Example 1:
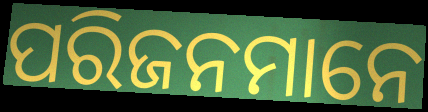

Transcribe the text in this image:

ପରିଜନମାନେ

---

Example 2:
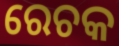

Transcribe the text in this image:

ରେଚକ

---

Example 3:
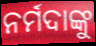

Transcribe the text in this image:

ନର୍ମଦାଙ୍କୁ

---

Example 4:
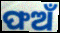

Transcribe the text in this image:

ଫଅଁ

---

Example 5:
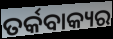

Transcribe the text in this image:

ତର୍କବାକ୍ୟର